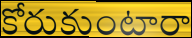
కోరుకుంటారా